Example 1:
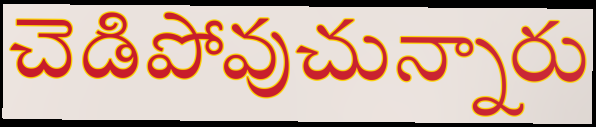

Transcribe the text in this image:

చెడిపోవుచున్నారు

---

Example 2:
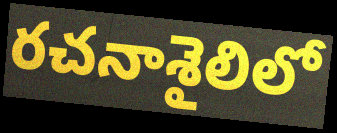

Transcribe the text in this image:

రచనాశైలిలో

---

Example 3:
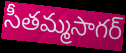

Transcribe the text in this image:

సీతమ్మసాగర్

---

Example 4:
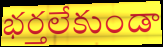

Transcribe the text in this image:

భర్తలేకుండా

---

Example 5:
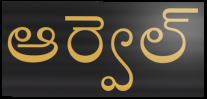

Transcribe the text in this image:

ఆర్వెల్